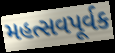
મહત્સવપૂર્વક